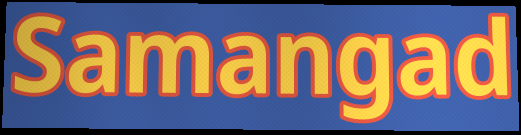
Samangad